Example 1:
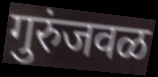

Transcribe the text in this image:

गुरुंजवळ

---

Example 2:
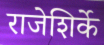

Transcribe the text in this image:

राजेशिर्के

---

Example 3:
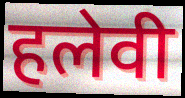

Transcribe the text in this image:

हलेवी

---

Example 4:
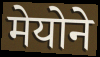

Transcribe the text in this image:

मेयोने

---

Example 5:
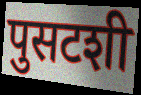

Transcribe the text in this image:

पुसटशी